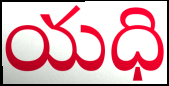
యధి